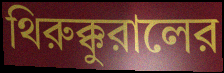
থিরুক্কুরালের